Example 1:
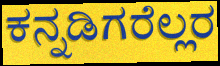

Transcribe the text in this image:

ಕನ್ನಡಿಗರೆಲ್ಲರ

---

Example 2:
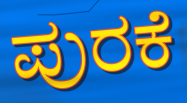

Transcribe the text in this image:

ಪುರಕೆ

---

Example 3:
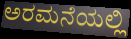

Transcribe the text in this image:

ಅರಮನೆಯಲ್ಲಿ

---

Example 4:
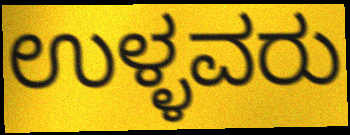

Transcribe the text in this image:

ಉಳ್ಳವರು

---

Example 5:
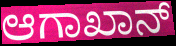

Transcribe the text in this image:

ಆಗಾಖಾನ್